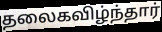
தலைகவிழ்ந்தார்